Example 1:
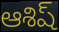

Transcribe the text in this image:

ఆశిష్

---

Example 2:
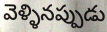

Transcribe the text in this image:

వెళ్ళినప్పుడు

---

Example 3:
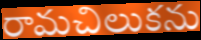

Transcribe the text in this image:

రామచిలుకను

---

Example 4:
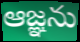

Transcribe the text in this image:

ఆజ్ఞను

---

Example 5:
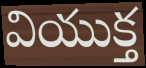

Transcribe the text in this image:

వియుక్త